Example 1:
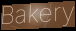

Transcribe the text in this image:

Bakery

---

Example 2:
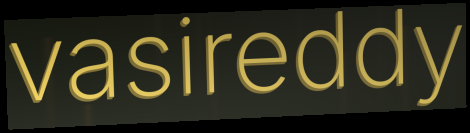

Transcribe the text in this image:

vasireddy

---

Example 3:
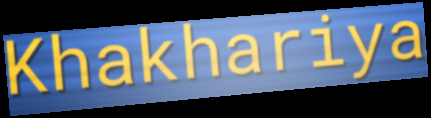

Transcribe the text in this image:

Khakhariya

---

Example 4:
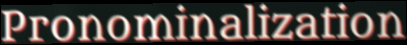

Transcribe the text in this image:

Pronominalization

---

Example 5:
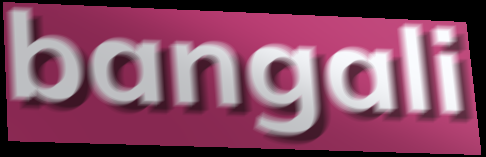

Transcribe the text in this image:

bangali